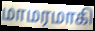
மாமரமாகி